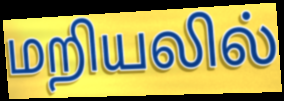
மறியலில்